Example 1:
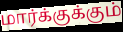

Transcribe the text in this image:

மார்க்குக்கும்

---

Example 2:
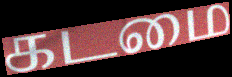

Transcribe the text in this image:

கடமை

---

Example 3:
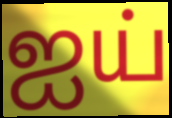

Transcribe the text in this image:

ஐய்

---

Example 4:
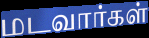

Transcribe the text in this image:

மடவார்கள்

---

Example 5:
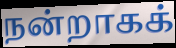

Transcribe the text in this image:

நன்றாகக்